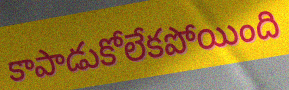
కాపాడుకోలేకపోయింది